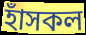
হাঁসকল